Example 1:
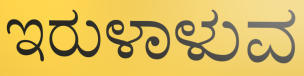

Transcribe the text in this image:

ಇರುಳಾಳುವ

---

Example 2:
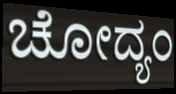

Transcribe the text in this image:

ಚೋದ್ಯಂ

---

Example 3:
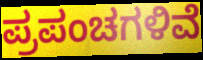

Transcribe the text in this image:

ಪ್ರಪಂಚಗಳಿವೆ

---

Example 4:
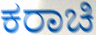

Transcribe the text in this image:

ಕರಾಚಿ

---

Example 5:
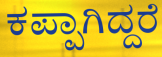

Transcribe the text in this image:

ಕಪ್ಪಾಗಿದ್ದರೆ